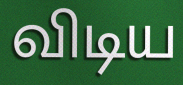
விடிய